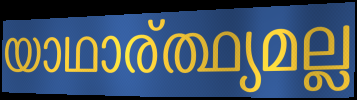
യാഥാര്ത്ഥ്യമല്ല